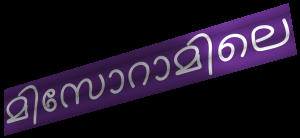
മിസോറാമിലെ